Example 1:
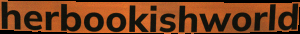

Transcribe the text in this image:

herbookishworld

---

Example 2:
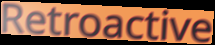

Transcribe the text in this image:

Retroactive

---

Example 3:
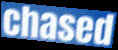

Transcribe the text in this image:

chased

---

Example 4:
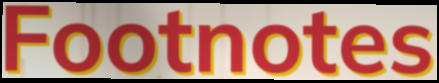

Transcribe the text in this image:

Footnotes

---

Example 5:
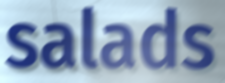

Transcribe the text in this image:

salads